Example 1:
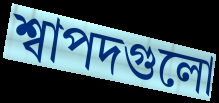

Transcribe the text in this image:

শ্বাপদগুলো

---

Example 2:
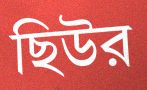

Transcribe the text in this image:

ছিউর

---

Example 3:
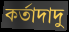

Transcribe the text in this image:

কর্তাদাদু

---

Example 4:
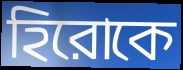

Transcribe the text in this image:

হিরোকে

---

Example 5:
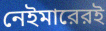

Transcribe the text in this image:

নেইমারেরই